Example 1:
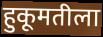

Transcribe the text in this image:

हुकूमतीला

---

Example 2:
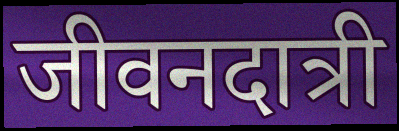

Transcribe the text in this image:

जीवनदात्री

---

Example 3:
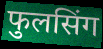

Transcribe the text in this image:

फुलसिंग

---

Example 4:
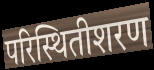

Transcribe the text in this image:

परिस्थितीशरण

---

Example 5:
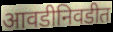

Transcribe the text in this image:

आवडीनिवडीत